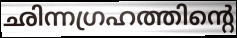
ഛിന്നഗ്രഹത്തിന്റെ